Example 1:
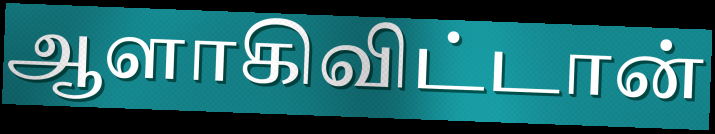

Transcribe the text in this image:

ஆளாகிவிட்டான்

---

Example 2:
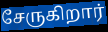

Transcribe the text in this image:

சேருகிறார்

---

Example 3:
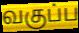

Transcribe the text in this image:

வகுப்ப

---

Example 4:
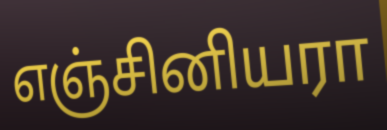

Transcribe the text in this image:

எஞ்சினியரா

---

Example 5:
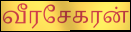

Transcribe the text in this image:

வீரசேகரன்